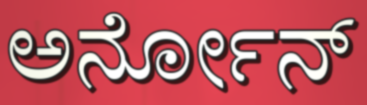
ಅರ್ನೋನ್